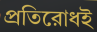
প্রতিরোধই